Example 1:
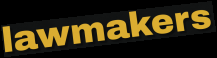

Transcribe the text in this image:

lawmakers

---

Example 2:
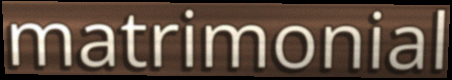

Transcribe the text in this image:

matrimonial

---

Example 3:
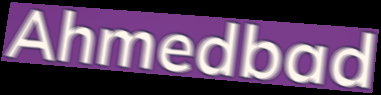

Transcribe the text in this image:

Ahmedbad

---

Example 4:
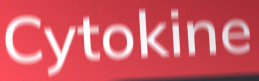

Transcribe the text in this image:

Cytokine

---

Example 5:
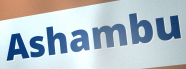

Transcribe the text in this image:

Ashambu